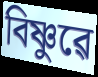
বিষ্ণুৱে